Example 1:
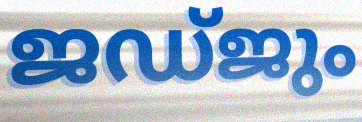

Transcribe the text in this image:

ജഡ്ജും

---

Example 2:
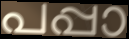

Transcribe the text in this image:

പപ്പാ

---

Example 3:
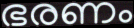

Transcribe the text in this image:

ഭരണം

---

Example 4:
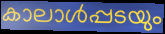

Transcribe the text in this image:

കാലാൾപ്പടയും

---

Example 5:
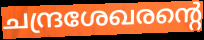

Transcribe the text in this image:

ചന്ദ്രശേഖരന്റെ